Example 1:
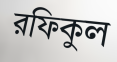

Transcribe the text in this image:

রফিকুল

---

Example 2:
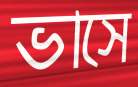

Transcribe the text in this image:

ভাসে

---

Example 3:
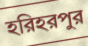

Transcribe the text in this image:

হরিহরপুর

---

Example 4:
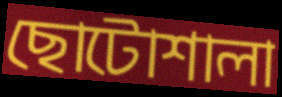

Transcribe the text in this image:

ছোটোশালা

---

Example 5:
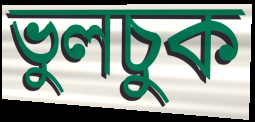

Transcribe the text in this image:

ভুলচুক